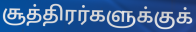
சூத்திரர்களுக்குக்